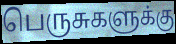
பெருசுகளுக்கு